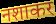
नशाकर